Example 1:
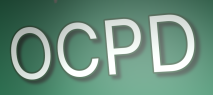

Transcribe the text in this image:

OCPD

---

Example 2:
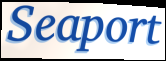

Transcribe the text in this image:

Seaport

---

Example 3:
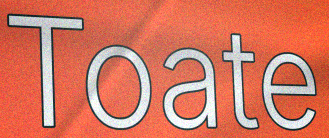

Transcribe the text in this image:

Toate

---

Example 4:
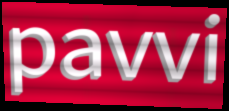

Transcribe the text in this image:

pavvi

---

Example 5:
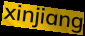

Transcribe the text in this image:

xinjiang